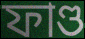
ফাণ্ড